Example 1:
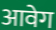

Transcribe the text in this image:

आवेग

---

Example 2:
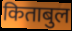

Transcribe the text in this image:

किताबुल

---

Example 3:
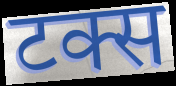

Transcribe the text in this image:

टक्स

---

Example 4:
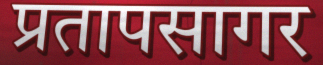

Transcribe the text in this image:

प्रतापसागर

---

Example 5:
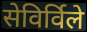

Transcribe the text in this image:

सेविर्विले